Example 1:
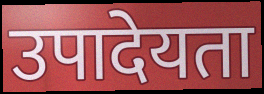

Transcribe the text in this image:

उपादेयता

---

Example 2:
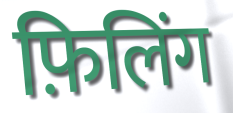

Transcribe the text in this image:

फ़िलिंग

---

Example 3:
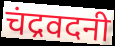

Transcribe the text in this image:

चंद्रवदनी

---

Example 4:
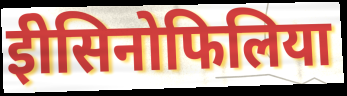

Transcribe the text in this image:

ईोसिनोफिलिया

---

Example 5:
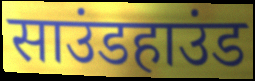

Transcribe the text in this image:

साउंडहाउंड